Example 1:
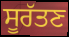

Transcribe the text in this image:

ਸੂਰੱਤਣ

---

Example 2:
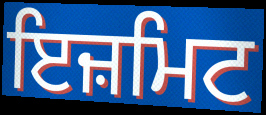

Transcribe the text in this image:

ਇਜ਼ਮਿਟ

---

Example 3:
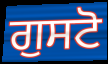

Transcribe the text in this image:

ਗੁਸਟੋ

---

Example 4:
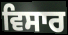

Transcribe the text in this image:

ਵਿਸਾਰ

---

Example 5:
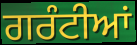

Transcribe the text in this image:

ਗਰੰਟੀਆਂ